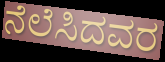
ನೆಲೆಸಿದವರ